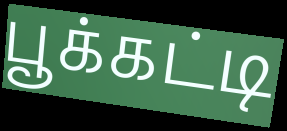
பூக்கட்டி